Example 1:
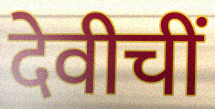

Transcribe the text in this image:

देवीचीं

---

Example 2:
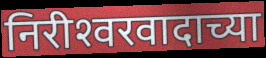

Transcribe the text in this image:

निरीश्वरवादाच्या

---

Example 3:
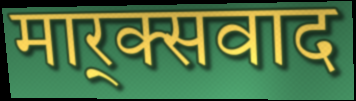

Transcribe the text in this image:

मार्क्सवाद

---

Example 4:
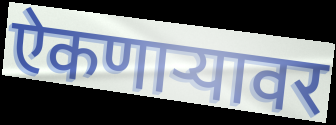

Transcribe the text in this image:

ऐकणार्‍यावर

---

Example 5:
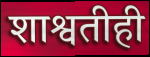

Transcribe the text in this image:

शाश्वतीही